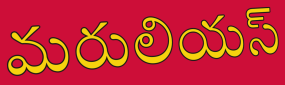
మరులియస్